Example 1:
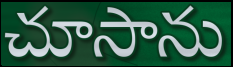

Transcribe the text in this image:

చూసాను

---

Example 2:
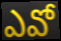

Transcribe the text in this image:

ఎవో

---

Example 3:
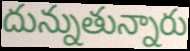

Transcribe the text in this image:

దున్నుతున్నారు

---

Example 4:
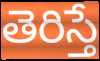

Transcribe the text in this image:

తెరిస్తే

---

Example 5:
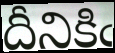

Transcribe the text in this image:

దీనికిఁ